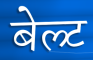
बेल्ट